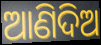
ଆଣିଦିଅ